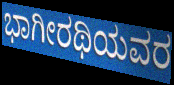
ಭಾಗೀರಥಿಯವರ